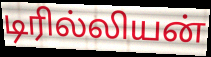
டிரில்லியன்